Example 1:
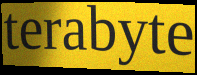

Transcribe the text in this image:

terabyte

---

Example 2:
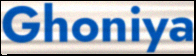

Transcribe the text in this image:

Ghoniya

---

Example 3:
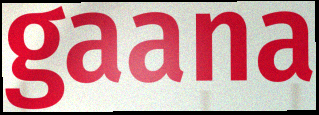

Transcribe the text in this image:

gaana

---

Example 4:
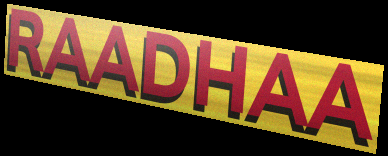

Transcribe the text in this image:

RAADHAA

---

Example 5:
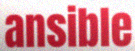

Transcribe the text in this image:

ansible